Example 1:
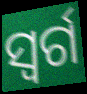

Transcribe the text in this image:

ସ୍ବର୍ଗ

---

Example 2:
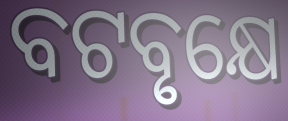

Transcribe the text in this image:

ବଟବୃକ୍ଷେ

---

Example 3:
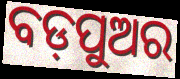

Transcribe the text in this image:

ବଡ଼ପୁଅର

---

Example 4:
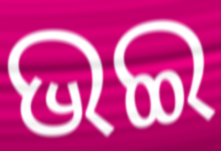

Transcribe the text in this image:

ଭଇ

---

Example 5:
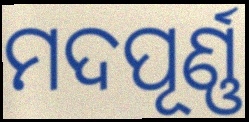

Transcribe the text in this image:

ମଦପୂର୍ଣ୍ଣ